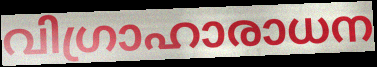
വിഗ്രാഹാരാധന